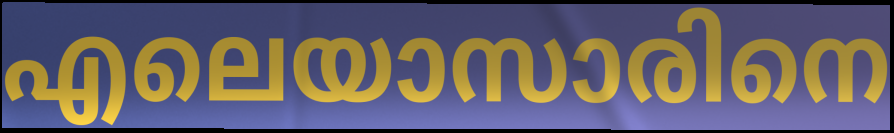
എലെയാസാരിനെ